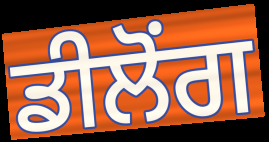
ਡੀਲੋਂਗ